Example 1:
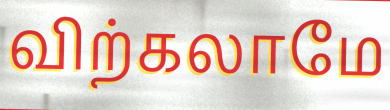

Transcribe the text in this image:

விற்கலாமே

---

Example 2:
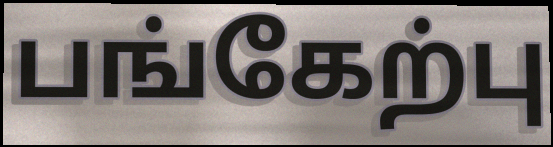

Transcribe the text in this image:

பங்கேற்பு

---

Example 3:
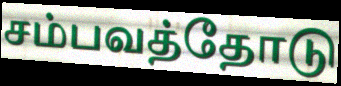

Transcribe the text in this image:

சம்பவத்தோடு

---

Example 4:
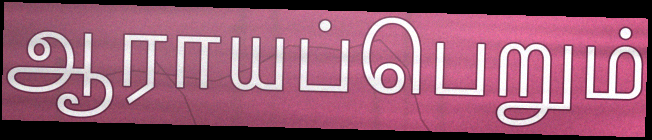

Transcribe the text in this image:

ஆராயப்பெறும்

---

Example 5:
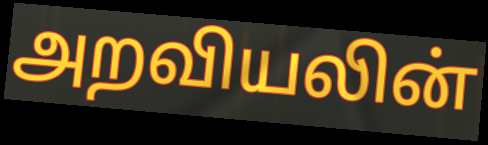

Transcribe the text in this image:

அறவியலின்